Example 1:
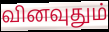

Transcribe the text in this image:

வினவுதும்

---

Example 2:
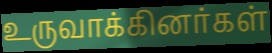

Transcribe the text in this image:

உருவாக்கினர்கள்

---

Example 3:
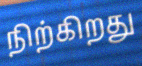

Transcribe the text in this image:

நிற்கிறது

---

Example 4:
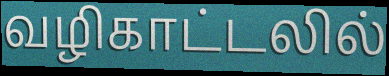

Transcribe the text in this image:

வழிகாட்டலில்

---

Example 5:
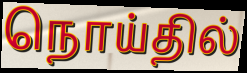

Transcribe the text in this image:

நொய்தில்